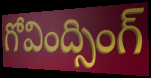
గోవింద్సింగ్